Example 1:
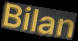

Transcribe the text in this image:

Bilan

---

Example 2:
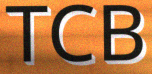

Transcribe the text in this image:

TCB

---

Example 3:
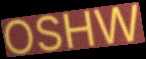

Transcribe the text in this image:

OSHW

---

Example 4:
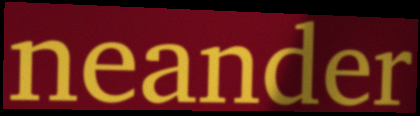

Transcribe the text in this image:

neander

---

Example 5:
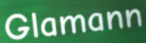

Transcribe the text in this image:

Glamann